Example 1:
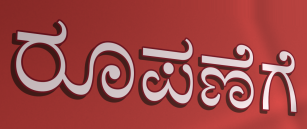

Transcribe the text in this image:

ರೂಪಣೆಗೆ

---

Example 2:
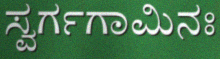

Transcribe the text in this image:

ಸ್ವರ್ಗಗಾಮಿನಃ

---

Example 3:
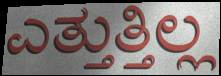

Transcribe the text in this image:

ಎತ್ತುತ್ತಿಲ್ಲ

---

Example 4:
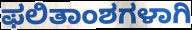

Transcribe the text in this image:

ಫಲಿತಾಂಶಗಳಾಗಿ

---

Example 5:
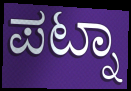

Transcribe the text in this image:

ಪಟ್ನಾ